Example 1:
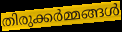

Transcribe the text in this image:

തിരുക്കർമ്മങ്ങൾ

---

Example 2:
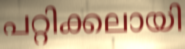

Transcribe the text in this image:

പറ്റിക്കലായി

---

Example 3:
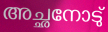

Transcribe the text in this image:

അച്ഛനോടു്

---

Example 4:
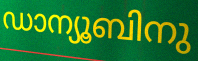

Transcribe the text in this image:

ഡാന്യൂബിനു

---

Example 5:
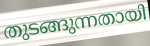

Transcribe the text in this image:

തുടങ്ങുന്നതായി